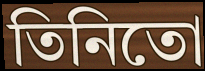
তিনিতো